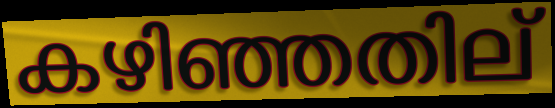
കഴിഞ്ഞതില്